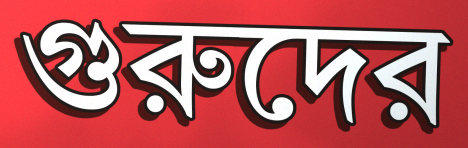
গুরুদের